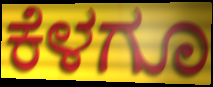
ಕೆಳಗೂ